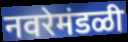
नवरेमंडळी